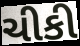
ચીકી